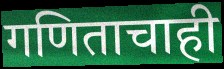
गणिताचाही